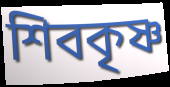
শিবকৃষ্ণ